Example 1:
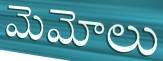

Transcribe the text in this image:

మెమోలు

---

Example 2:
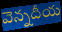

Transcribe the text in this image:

వెన్నదీయ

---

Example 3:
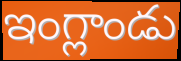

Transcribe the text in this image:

ఇంగ్లాండు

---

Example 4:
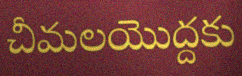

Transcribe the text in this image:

చీమలయొద్దకు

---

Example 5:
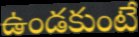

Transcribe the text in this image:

ఉండకుంటే